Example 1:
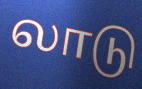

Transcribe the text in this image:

லாடு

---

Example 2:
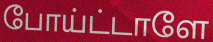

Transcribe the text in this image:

போய்ட்டாளே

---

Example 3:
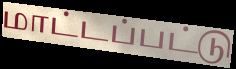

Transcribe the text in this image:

மாட்டப்பட்டு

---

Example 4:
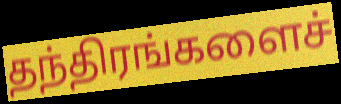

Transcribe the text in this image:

தந்திரங்களைச்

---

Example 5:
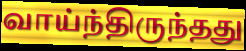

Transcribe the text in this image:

வாய்ந்திருந்தது